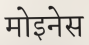
मोइनेस